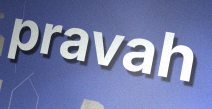
pravah